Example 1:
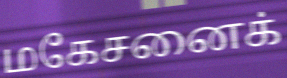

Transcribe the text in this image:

மகேசனைக்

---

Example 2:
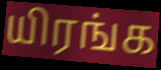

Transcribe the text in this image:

யிரங்க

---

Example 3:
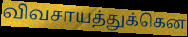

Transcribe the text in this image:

விவசாயத்துக்கென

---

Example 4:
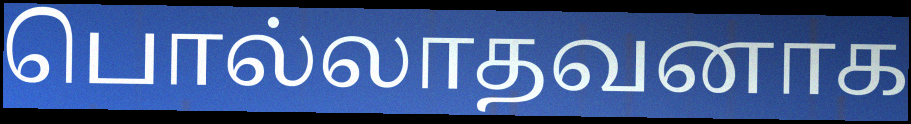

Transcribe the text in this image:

பொல்லாதவனாக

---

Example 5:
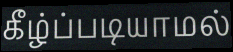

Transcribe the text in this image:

கீழ்ப்படியாமல்